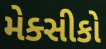
મેક્સીકો